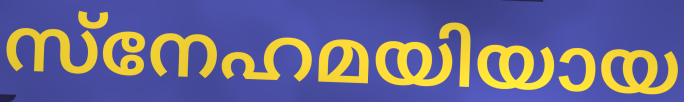
സ്നേഹമയിയായ